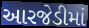
આરજેડીમાં